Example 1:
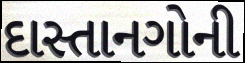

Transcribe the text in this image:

દાસ્તાનગોની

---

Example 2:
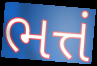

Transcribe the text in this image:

ભત્તં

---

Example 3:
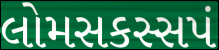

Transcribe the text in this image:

લોમસકસ્સપં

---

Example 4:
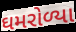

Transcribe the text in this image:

ઘમરોળ્યા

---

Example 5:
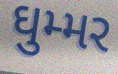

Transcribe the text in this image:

ઘુમ્મર